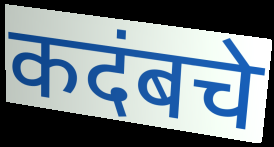
कदंबचे